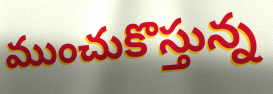
ముంచుకొస్తున్న